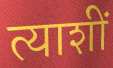
त्याशीं